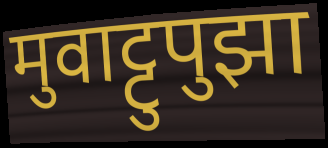
मुवाट्टुपुझा